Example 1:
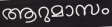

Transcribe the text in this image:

ആറുമാസം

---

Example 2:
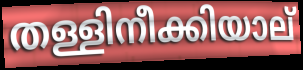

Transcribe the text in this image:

തള്ളിനീക്കിയാല്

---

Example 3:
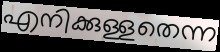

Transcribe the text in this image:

എനിക്കുള്ളതെന്ന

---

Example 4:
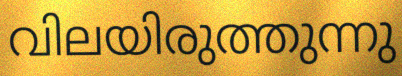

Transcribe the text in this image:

വിലയിരുത്തുന്നു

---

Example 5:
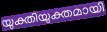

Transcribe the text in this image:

യുക്തിയുക്തമായി